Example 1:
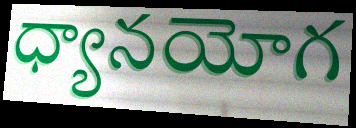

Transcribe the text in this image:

ధ్యానయోగ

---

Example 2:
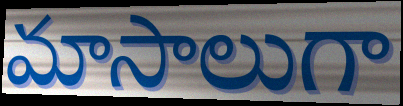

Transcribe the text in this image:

మాసాలుగా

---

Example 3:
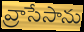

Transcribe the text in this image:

వ్రాసేసాను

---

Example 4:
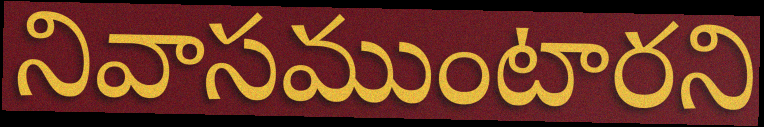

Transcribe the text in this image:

నివాసముంటారని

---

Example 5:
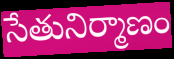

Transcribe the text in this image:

సేతునిర్మాణం